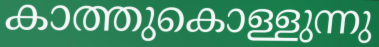
കാത്തുകൊള്ളുന്നു